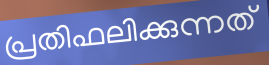
പ്രതിഫലിക്കുന്നത്